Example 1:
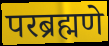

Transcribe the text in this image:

परब्रह्मणे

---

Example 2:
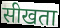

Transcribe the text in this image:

सीखता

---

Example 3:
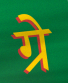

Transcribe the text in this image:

ग्रे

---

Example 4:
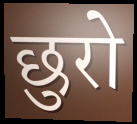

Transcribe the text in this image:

छुरो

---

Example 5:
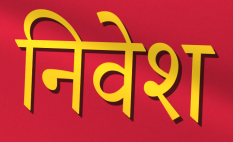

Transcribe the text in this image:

निवेश